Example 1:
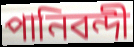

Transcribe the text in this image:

পানিবন্দী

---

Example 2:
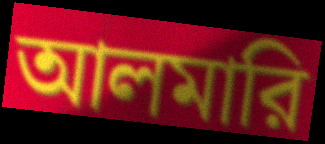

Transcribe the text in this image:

আলমারি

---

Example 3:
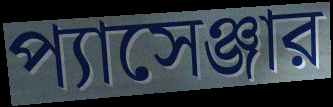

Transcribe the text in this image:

প্যাসেঞ্জার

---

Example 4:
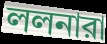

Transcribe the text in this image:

ললনারা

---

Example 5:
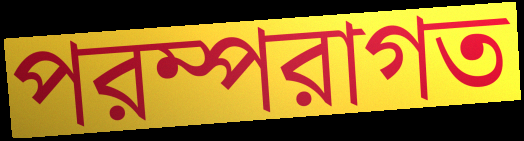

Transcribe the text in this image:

পরম্পরাগত